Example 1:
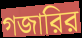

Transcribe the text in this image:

গজারির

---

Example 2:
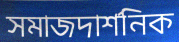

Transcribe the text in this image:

সমাজদার্শনিক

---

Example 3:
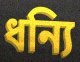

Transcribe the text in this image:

ধন্যি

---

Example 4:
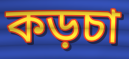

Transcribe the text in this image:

কড়চা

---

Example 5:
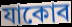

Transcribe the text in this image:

যাকোব